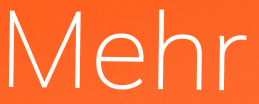
Mehr